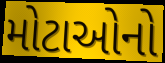
મોટાઓનો